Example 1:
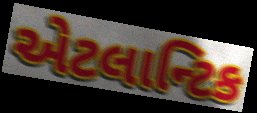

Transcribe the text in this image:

એટલાન્ટિક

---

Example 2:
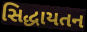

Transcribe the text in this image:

સિદ્ધાયતન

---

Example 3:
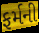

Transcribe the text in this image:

ફર્મની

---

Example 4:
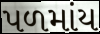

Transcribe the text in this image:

પળમાંય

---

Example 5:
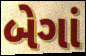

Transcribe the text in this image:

બેગાં